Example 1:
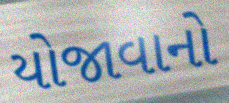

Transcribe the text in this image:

યોજાવાનો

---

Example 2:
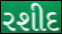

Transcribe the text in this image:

રશીદ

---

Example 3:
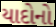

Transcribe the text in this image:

યાદોનો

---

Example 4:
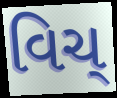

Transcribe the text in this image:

વિચ્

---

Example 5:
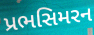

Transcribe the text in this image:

પ્રભસિમરન